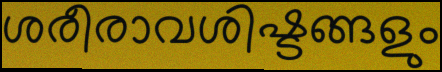
ശരീരാവശിഷ്ടങ്ങളും